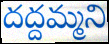
దద్దమ్మని